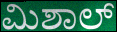
ಮಿಶಾಲ್